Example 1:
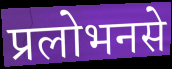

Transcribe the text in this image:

प्रलोभनसे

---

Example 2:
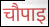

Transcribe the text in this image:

चौपाइ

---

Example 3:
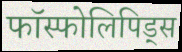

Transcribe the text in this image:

फॉस्फोलिपिड्स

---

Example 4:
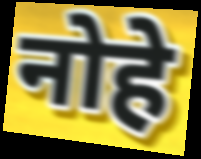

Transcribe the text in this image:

नोहे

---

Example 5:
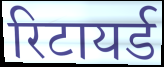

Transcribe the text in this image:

रिटायर्ड